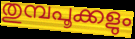
തുമ്പപൂക്കളും